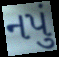
નપું